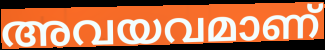
അവയവമാണ്